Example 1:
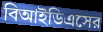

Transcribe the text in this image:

বিআইডিএসের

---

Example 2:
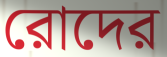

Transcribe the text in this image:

রোদের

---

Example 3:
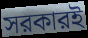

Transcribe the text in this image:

সরকারই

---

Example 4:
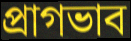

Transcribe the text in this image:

প্রাগভাব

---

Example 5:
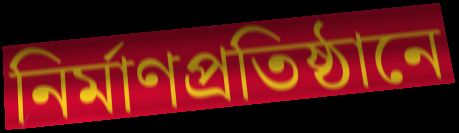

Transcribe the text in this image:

নির্মাণপ্রতিষ্ঠানে